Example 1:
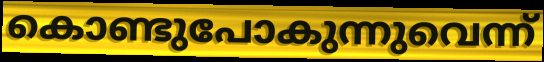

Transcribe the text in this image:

കൊണ്ടുപോകുന്നുവെന്ന്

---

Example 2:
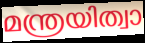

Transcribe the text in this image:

മന്ത്രയിത്വാ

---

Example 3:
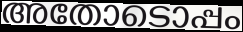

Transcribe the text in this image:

അതോടൊപ്പം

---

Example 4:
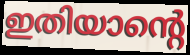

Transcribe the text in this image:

ഇതിയാന്റെ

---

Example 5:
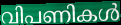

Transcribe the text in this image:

വിപണികൾ